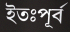
ইতঃপূর্ব